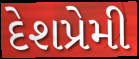
દેશપ્રેમી